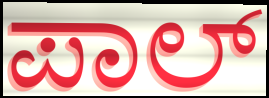
ಪಾಲ್